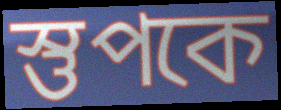
স্তুপকে